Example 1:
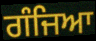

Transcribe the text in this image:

ਗੰਜਿਆ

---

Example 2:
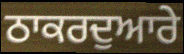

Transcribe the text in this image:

ਠਾਕਰਦੁਆਰੇ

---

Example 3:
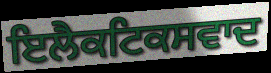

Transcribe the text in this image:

ਇਲੈਕਟਿਕਸਵਾਦ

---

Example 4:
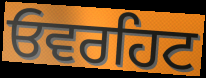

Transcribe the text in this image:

ਓਵਰਹਿਟ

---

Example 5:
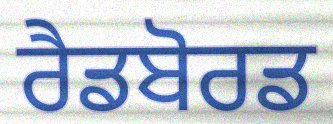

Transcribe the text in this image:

ਰੈਡਬੋਰਡ